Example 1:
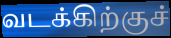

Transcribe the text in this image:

வடக்கிற்குச்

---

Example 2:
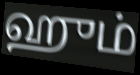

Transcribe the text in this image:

ஹும்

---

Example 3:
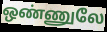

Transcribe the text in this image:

ஒண்ணுலே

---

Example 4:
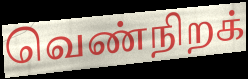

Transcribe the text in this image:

வெண்நிறக்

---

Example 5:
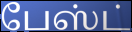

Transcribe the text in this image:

பேஸ்ட்